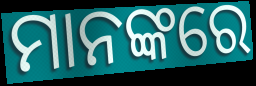
ମାନଙ୍କରେ